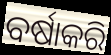
ବର୍ଷାକରି